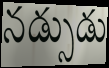
నడ్సుడు